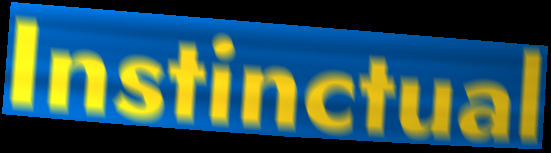
Instinctual